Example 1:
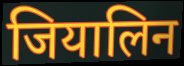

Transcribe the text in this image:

जियालिन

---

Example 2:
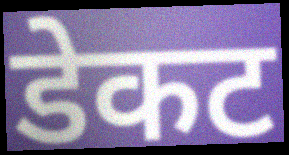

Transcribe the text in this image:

डेकट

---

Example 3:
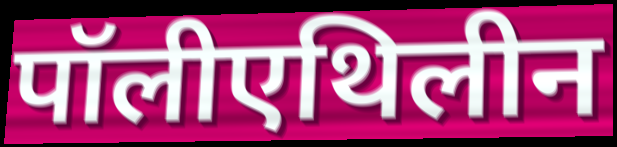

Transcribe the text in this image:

पॉलीएथिलीन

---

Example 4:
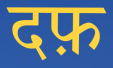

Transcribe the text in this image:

दफ़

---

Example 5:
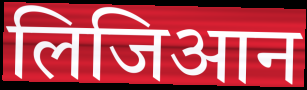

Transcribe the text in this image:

लिजिआन